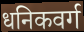
धनिकवर्ग